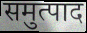
समुत्पाद